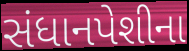
સંધાનપેશીના